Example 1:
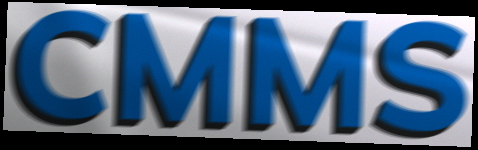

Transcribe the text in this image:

CMMS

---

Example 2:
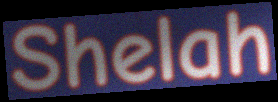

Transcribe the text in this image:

Shelah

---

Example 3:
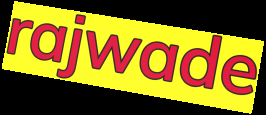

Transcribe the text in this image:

rajwade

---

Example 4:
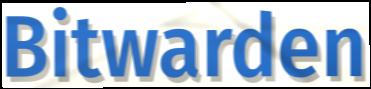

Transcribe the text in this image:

Bitwarden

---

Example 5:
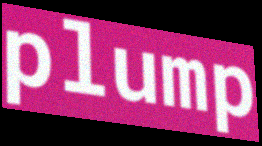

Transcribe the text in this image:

plump